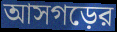
আসগড়ের